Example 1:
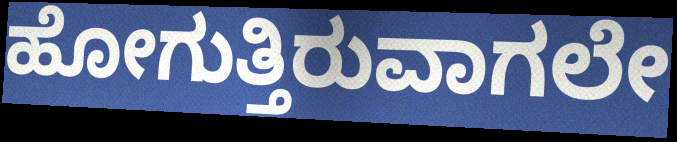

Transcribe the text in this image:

ಹೋಗುತ್ತಿರುವಾಗಲೇ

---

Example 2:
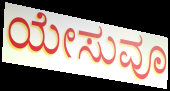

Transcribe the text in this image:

ಯೇಸುವೂ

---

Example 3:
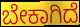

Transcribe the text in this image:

ಬೇಕಾಗಿದೆ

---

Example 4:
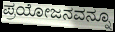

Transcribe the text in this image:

ಪ್ರಯೋಜನವನ್ನೂ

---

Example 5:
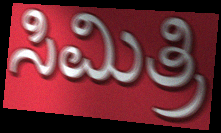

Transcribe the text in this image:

ಸಿಮಿತ್ರಿ